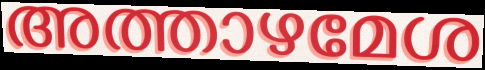
അത്താഴമേശ